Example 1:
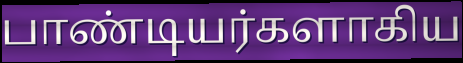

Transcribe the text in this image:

பாண்டியர்களாகிய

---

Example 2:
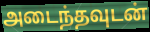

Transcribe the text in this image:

அடைந்தவுடன்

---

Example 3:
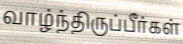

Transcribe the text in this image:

வாழ்ந்திருப்பீர்கள்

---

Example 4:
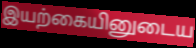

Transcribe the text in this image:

இயற்கையினுடைய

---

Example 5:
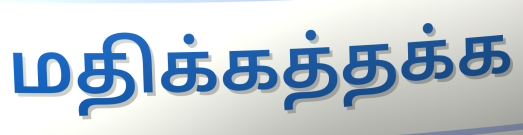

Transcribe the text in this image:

மதிக்கத்தக்க